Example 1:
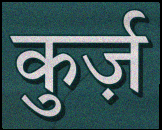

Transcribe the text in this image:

कुर्ज़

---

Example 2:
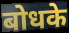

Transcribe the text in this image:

बोधके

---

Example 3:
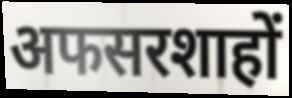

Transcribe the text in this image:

अफसरशाहों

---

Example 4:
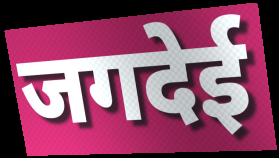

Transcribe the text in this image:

जगदेई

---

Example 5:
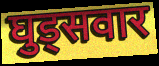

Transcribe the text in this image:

घुड्सवार